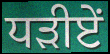
ਧੜੀਏਂ